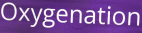
Oxygenation